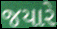
જયારે